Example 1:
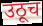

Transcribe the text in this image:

उठूच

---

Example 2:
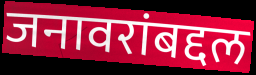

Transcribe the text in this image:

जनावरांबद्दल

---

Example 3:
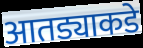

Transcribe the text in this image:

आतड्याकडे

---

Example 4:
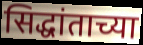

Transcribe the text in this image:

सिद्धांताच्या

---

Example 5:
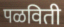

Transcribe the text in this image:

पळविती